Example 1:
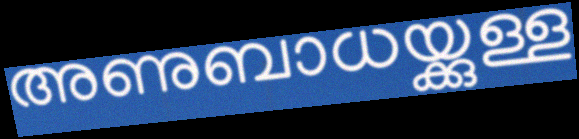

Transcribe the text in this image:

അണുബാധയ്ക്കുള്ള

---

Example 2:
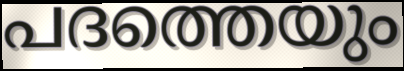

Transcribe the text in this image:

പദത്തെയും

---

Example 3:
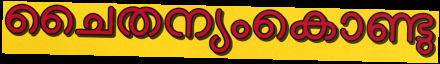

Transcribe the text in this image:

ചൈതന്യംകൊണ്ടു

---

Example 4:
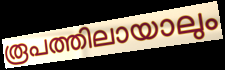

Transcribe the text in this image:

രൂപത്തിലായാലും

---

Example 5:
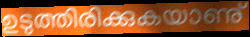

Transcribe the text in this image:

ഉടുത്തിരിക്കുകയാണു്